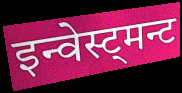
इन्वेस्ट्मन्ट